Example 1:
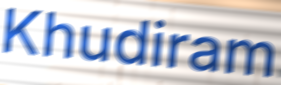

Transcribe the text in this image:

Khudiram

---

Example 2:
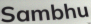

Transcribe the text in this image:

Sambhu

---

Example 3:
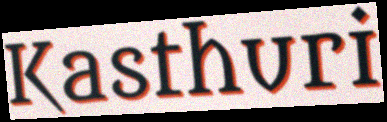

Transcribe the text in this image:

Kasthuri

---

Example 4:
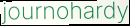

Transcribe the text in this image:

journohardy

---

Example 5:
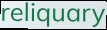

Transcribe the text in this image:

reliquary